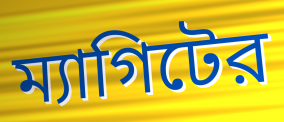
ম্যাগিটের